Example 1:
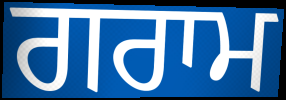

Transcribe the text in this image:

ਗਰਾਮ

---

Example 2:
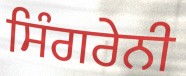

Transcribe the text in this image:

ਸਿੰਗਰੇਨੀ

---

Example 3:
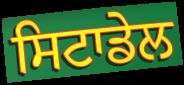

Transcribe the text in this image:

ਸਿਟਾਡੇਲ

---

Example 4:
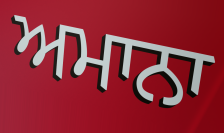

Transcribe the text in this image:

ਅਮਾਨਾ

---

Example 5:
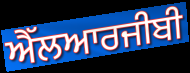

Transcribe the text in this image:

ਐੱਲਆਰਜੀਬੀ